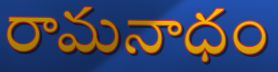
రామనాధం